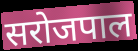
सरोजपाल